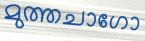
മുത്തചാഗോ